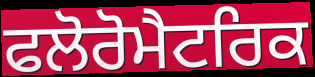
ਫਲੋਰੋਮੈਟਰਿਕ